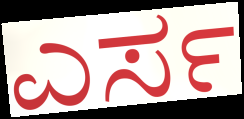
ಎರ್ಸ